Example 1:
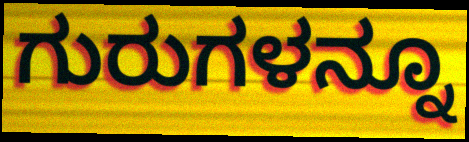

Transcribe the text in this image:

ಗುರುಗಳನ್ನೂ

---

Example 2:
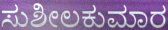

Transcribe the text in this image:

ಸುಶೀಲಕುಮಾರ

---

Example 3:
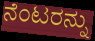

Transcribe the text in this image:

ನೆಂಟರನ್ನು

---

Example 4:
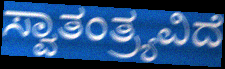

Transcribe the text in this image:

ಸ್ವಾತಂತ್ರ್ಯವಿದೆ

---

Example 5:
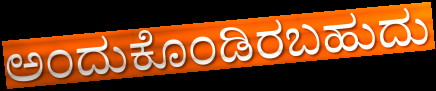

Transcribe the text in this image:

ಅಂದುಕೊಂಡಿರಬಹುದು